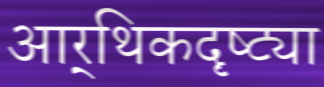
आर्थिकदृष्ट्या